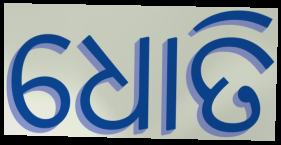
ଧୋତି